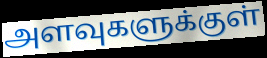
அளவுகளுக்குள்